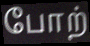
போற்